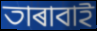
তাৰাবাই